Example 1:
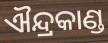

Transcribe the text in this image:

ଐନ୍ଦ୍ରକାଣ୍ଡ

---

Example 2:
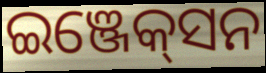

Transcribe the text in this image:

ଇଞ୍ଜେକ୍‌ସନ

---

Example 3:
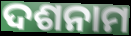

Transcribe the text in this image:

ଦଶନାମ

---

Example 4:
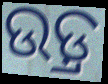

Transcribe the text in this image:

ଉଡ଼୍ର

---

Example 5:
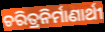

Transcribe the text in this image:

ଚରିତ୍ରନିର୍ମାଣାର୍ଥୀ